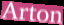
Arton